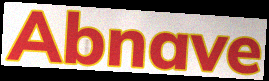
Abnave